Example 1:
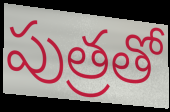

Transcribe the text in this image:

పుత్రతో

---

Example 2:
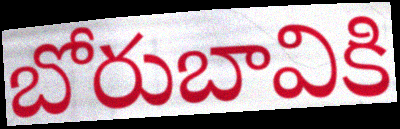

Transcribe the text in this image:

బోరుబావికి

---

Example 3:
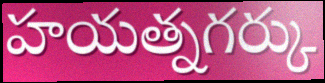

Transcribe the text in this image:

హయత్నగర్కు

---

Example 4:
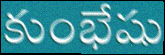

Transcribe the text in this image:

కుంభేషు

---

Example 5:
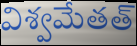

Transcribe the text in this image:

విశ్వమేతత్